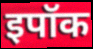
इपॉक